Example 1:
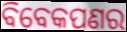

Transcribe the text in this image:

ବିବେକପଣର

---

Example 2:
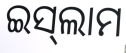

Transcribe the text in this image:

ଇସ୍‌ଲାମ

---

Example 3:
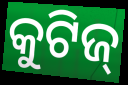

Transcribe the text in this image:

କୁଟିଜ୍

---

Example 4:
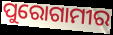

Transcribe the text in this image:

ପୁରୋଗାମୀର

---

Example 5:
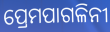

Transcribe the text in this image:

ପ୍ରେମପାଗଳିନୀ